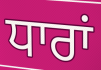
ਧਾਰਾਂ